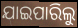
ଯାଇପାରିଲୁ